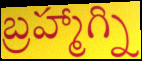
బ్రహ్మాగ్ని